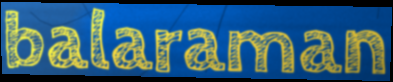
balaraman